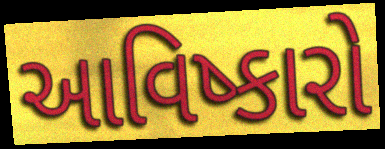
આવિષ્કારો